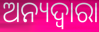
ଅନ୍ୟଦ୍ୱାରା